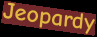
Jeopardy